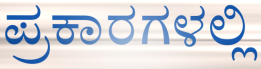
ಪ್ರಕಾರಗಳಲ್ಲಿ